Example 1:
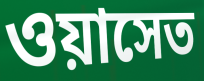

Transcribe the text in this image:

ওয়াসেত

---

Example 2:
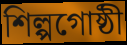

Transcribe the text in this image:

শিল্পগোষ্ঠী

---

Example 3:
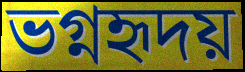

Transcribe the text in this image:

ভগ্নহৃদয়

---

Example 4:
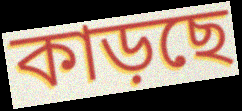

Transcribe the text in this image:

কাড়ছে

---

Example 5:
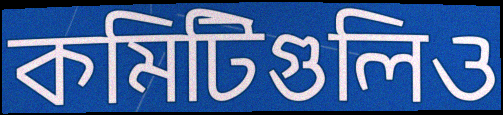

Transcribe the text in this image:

কমিটিগুলিও